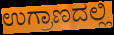
ಉಗ್ರಾಣದಲ್ಲಿ